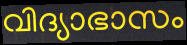
വിദ്യാഭാസം